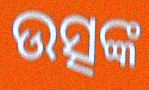
ଉତ୍ସଙ୍କ